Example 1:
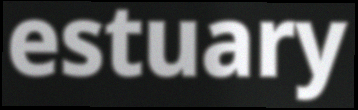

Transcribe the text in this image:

estuary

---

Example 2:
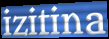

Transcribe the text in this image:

izitina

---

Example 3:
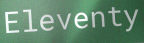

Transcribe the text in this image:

Eleventy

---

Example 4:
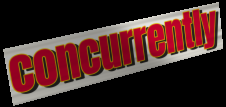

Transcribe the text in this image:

concurrently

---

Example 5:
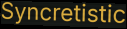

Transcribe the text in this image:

Syncretistic